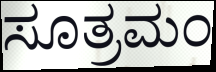
ಸೂತ್ರಮಂ